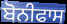
ਬੋਨੀਫਾਸ